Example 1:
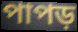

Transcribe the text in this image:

পাপড়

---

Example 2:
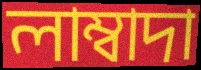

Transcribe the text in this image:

লাম্বাদা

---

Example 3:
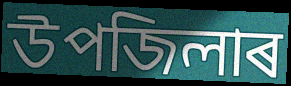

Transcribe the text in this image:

উপজিলাৰ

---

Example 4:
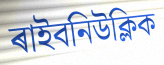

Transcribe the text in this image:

ৰাইবনিউক্লিক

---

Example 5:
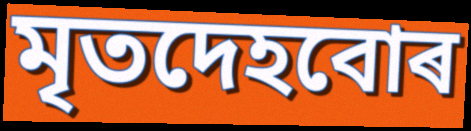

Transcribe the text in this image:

মৃতদেহবোৰ